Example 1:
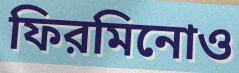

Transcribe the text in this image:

ফিরমিনোও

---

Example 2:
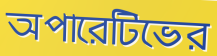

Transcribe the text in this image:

অপারেটিভের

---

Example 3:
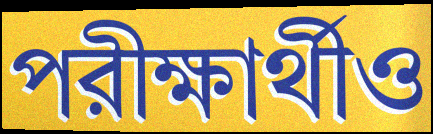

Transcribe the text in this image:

পরীক্ষার্থীও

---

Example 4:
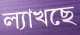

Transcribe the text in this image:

ল্যাখছে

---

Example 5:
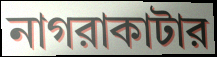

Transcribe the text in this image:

নাগরাকাটার